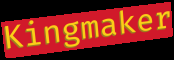
Kingmaker